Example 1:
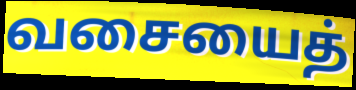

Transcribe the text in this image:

வசையைத்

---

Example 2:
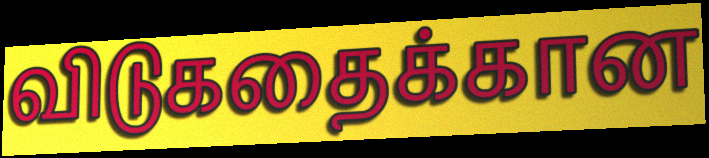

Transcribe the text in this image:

விடுகதைக்கான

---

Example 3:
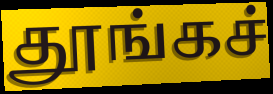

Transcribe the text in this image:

தூங்கச்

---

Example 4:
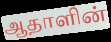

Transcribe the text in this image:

ஆதாளின்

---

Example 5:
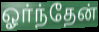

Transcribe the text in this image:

ஓர்ந்தேன்